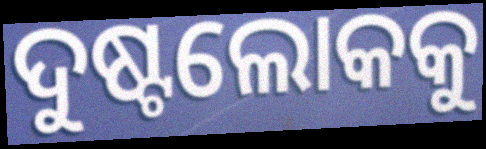
ଦୁଷ୍ଟଲୋକକୁ